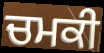
ਚਮਕੀ